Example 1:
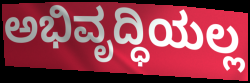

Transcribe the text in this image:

ಅಭಿವೃದ್ಧಿಯಲ್ಲ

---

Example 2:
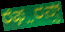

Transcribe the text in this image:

ರೆಫ಼ರನ್ಸ್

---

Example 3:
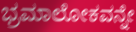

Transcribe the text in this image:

ಭ್ರಮಾಲೋಕವನ್ನೇ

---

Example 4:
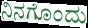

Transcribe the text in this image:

ನಿನಗೊಂದು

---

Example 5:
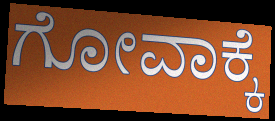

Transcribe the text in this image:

ಗೋವಾಕ್ಕೆ